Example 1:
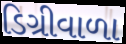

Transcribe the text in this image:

ડિગ્રીવાળા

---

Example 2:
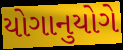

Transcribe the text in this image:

યોગાનુયોગે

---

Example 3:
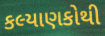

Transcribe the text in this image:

કલ્યાણકોથી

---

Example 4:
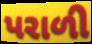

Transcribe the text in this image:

પરાળી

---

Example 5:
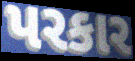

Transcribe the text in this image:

પરકાર